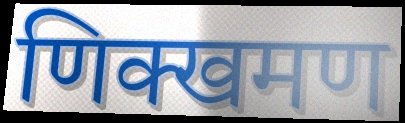
णिक्खमण